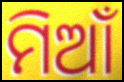
ମିଆଁ